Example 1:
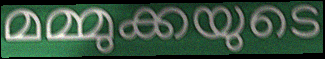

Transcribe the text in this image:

മമ്മുക്കയുടെ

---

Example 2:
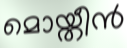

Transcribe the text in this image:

മൊയ്തീൻ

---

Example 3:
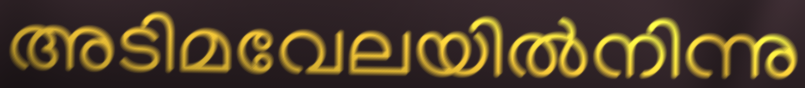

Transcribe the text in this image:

അടിമവേലയിൽനിന്നു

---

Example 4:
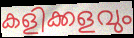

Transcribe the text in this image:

കളിക്കളവും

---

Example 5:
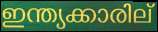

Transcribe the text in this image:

ഇന്ത്യക്കാരില്